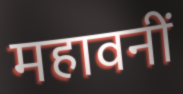
महावनीं